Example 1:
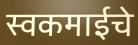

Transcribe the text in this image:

स्वकमाईचे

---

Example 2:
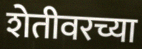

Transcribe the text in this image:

शेतीवरच्या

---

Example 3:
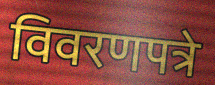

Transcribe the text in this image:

विवरणपत्रे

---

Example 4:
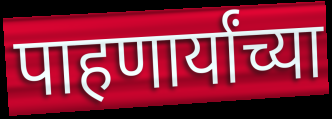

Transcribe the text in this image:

पाहणार्यांच्या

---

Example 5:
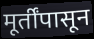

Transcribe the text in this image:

मूर्तींपासून